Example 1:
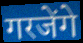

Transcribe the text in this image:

गरजेंगे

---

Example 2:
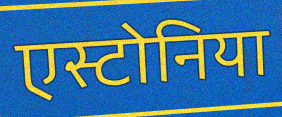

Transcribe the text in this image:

एस्‍टोनिया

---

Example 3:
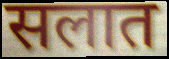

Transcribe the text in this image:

सलात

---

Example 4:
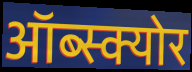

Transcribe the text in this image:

ऑब्स्क्योर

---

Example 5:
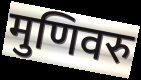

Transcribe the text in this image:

मुणिवरु